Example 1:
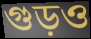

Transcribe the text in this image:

গুড়ও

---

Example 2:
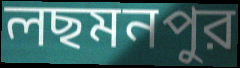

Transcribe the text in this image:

লছমনপুর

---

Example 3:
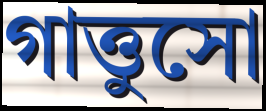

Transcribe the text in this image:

গাত্তুসো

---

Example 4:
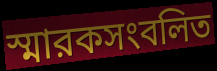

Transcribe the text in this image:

স্মারকসংবলিত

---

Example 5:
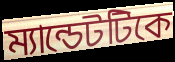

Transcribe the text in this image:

ম্যান্ডেটটিকে